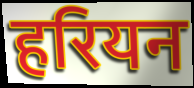
हरियन